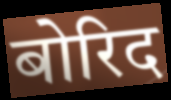
बोरिद